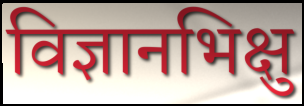
विज्ञानभिक्षु